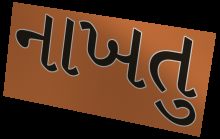
નાખતુ